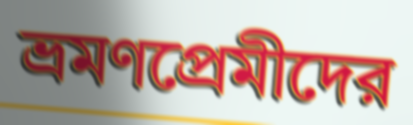
ভ্রমণপ্রেমীদের